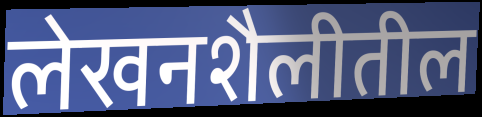
लेखनशैलीतील